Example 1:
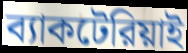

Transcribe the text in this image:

ব্যাকটেরিয়াই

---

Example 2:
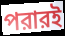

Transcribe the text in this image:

পরারই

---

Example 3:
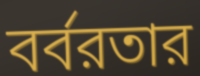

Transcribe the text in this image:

বর্বরতার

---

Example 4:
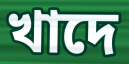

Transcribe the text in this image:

খাদে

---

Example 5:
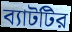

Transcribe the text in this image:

ব্যাটটির